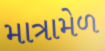
માત્રામેળ